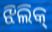
ଝିଲିକ୍